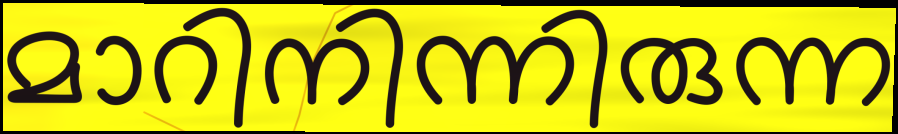
മാറിനിന്നിരുന്ന